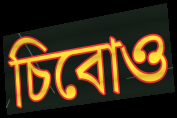
চিবোও